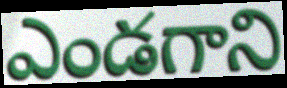
ఎండగాని